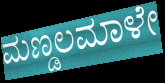
ಮಣ್ಡಲಮಾಳೇ